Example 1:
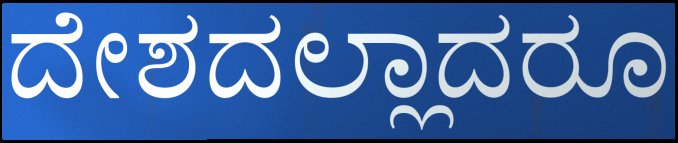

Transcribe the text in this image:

ದೇಶದಲ್ಲಾದರೂ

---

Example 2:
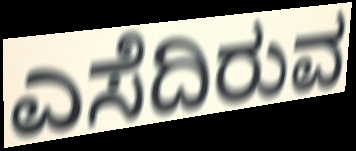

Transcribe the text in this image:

ಎಸೆದಿರುವ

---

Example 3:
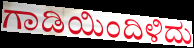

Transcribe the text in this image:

ಗಾಡಿಯಿಂದಿಳಿದು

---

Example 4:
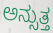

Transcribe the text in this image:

ಅನ್ಸುತ್ತ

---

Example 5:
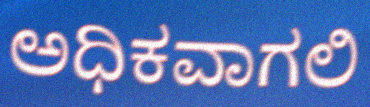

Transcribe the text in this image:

ಅಧಿಕವಾಗಲಿ